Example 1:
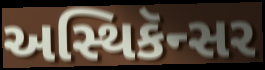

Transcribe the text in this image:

અસ્થિકૅન્સર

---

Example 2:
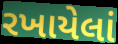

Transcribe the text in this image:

રખાયેલાં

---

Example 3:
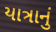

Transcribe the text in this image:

યાત્રાનું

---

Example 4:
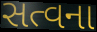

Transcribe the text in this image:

સત્વના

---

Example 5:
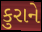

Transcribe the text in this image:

કુરાને